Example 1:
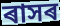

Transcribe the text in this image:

ৰাসৰ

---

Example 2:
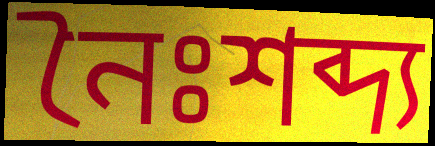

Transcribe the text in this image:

নৈঃশব্দ্য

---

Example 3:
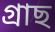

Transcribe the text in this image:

গ্ৰাছ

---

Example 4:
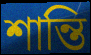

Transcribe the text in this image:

শান্তি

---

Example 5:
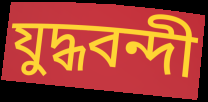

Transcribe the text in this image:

যুদ্ধবন্দী